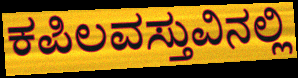
ಕಪಿಲವಸ್ತುವಿನಲ್ಲಿ